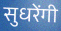
सुधरेंगी